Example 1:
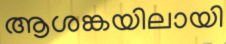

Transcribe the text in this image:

ആശങ്കയിലായി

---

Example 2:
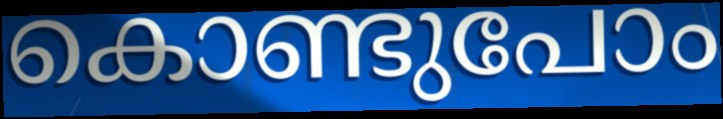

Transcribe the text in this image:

കൊണ്ടുപോം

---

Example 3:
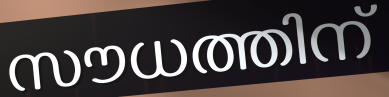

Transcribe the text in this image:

സൗധത്തിന്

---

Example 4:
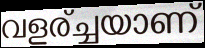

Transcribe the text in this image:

വളര്ച്ചയാണ്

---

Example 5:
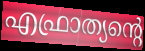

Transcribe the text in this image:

എഫ്രാത്യന്റെ